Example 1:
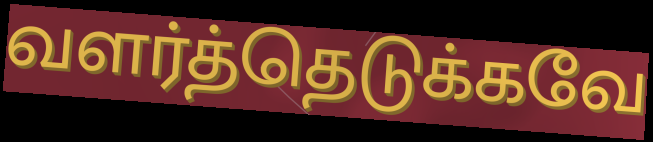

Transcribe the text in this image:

வளர்த்தெடுக்கவே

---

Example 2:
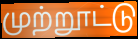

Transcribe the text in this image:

முற்றூட்டு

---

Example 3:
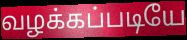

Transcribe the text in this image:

வழக்கப்படியே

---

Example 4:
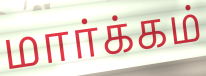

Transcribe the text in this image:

மார்க்கம்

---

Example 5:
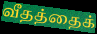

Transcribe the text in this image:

வீதத்தைக்